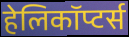
हेलिकॉप्टर्स